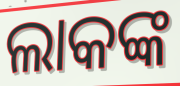
ଲାକଙ୍କ